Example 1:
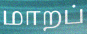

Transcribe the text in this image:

மாறப்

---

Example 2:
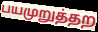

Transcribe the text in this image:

பயமுறுத்தற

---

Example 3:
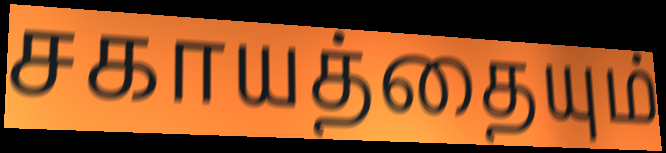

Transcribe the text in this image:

சகாயத்தையும்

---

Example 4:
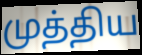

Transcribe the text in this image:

முத்திய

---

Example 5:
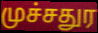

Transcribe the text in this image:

முச்சதுர